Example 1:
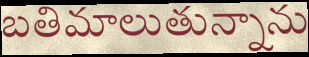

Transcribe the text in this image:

బతిమాలుతున్నాను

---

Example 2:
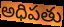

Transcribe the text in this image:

అధిపతు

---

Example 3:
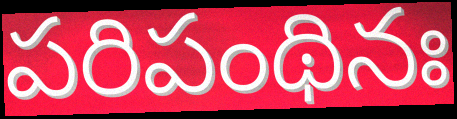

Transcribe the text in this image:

పరిపంథినః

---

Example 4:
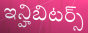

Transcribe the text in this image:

ఇన్హిబిటర్స్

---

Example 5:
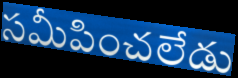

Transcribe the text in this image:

సమీపించలేడు